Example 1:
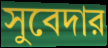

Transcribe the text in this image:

সুবেদার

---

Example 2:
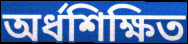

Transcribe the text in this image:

অর্ধশিক্ষিত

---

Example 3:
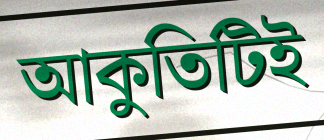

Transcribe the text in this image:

আকুতিটিই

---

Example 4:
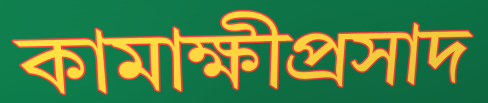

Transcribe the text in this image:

কামাক্ষীপ্রসাদ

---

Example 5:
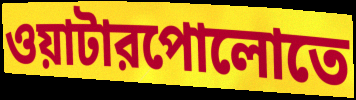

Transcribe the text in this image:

ওয়াটারপোলোতে